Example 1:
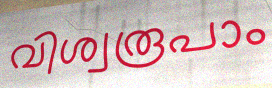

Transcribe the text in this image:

വിശ്വരൂപാം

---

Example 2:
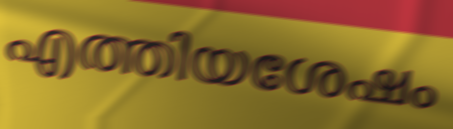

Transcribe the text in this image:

എത്തിയശേഷം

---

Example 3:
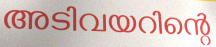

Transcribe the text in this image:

അടിവയറിന്റെ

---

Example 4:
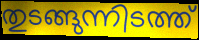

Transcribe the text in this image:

തുടങ്ങുന്നിടത്ത്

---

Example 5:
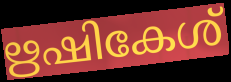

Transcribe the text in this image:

ഋഷികേശ്